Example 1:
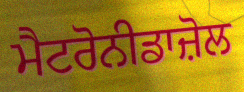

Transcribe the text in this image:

ਮੈਟਰੋਨੀਡਾਜ਼ੋਲ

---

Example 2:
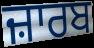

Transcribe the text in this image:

ਜ਼ਾਰਬ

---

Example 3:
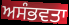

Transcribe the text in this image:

ਅਸੰਭਵਤਾ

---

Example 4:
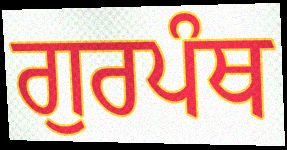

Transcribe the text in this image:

ਗੁਰਪੰਥ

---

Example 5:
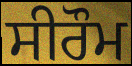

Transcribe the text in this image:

ਸੀਰੌਮ